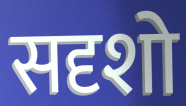
सदृशो